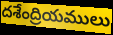
దశేంద్రియములు